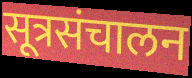
सूत्रसंचालन